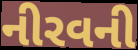
નીરવની